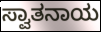
ಸ್ವಾತನಾಯ